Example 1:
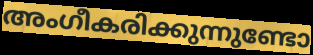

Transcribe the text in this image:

അംഗീകരിക്കുന്നുണ്ടോ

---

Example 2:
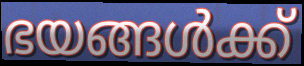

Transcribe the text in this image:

ഭയങ്ങൾക്ക്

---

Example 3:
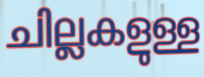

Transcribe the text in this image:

ചില്ലകളുള്ള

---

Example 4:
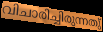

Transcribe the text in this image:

വിചാരിച്ചിരുന്നതു്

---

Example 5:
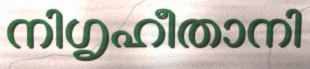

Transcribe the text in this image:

നിഗൃഹീതാനി